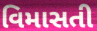
વિમાસતી